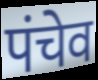
पंचेव